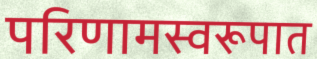
परिणामस्वरूपात